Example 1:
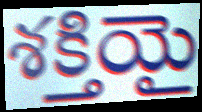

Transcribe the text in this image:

శక్తియై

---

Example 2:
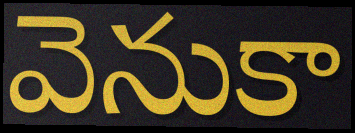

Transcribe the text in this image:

వెనుకా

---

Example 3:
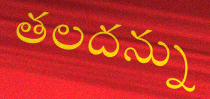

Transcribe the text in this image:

తలదన్ను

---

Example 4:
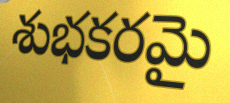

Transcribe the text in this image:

శుభకరమై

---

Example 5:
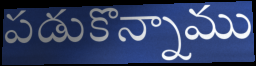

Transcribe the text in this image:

పడుకొన్నాము